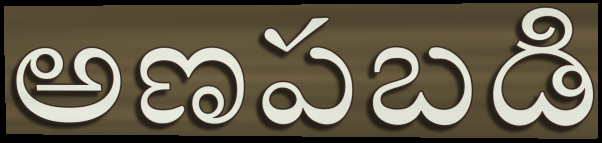
అణపబడి